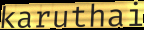
karuthai